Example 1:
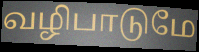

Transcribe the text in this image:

வழிபாடுமே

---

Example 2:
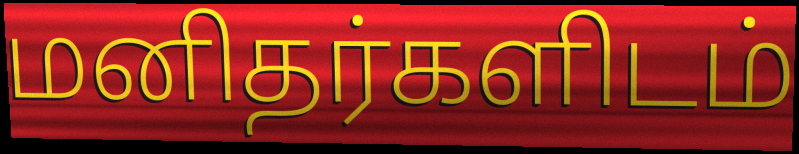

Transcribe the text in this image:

மனிதர்களிடம்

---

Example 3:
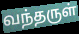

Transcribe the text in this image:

வந்தருள்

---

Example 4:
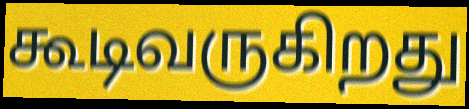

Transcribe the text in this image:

கூடிவருகிறது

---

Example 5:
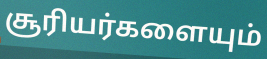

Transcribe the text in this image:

சூரியர்களையும்